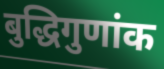
बुद्धिगुणांक